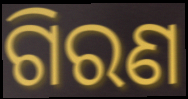
ଗିରଣ